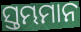
ସ୍ତମ୍ଭମାନ